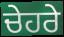
ਚੇਹਰੇ